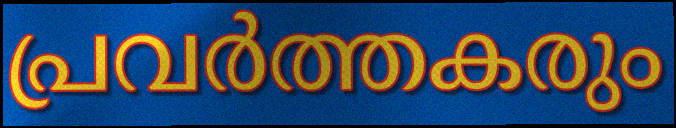
പ്രവർത്തകരും